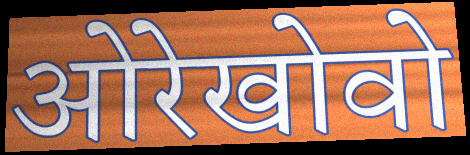
ओरेखोवो